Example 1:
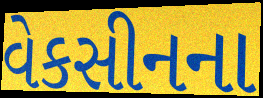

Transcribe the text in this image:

વેકસીનના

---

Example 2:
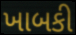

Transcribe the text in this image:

ખાબકી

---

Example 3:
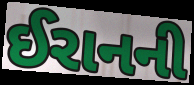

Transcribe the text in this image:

ઈરાનની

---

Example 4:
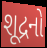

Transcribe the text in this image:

શૂદ્રનો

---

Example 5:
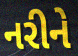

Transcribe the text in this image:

નરીને